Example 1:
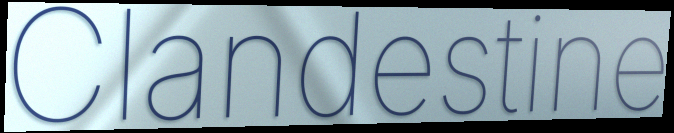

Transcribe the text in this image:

Clandestine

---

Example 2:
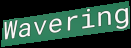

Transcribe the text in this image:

Wavering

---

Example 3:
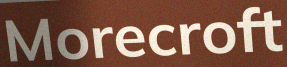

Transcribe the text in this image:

Morecroft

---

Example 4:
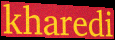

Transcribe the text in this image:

kharedi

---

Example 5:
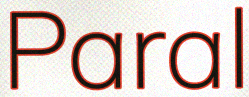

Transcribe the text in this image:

Paral